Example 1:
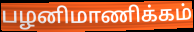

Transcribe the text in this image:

பழனிமாணிக்கம்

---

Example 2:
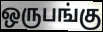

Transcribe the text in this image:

ஒருபங்கு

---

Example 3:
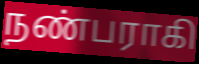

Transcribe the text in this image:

நண்பராகி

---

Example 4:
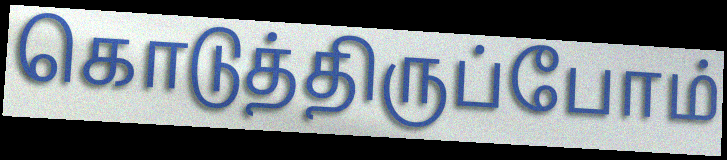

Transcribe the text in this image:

கொடுத்திருப்போம்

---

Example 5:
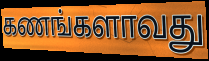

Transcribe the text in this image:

கணங்களாவது